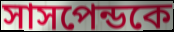
সাসপেন্ডকে